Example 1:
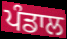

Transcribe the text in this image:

ਪੰਡਾਲ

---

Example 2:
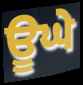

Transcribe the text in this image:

ਊਘੇ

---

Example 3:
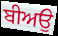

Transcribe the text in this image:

ਬੀਅਉ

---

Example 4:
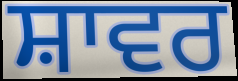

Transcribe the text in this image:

ਸ਼ਾਵਰ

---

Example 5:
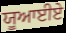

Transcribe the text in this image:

ਯੂਆਈਏ